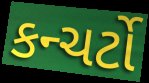
કન્ચર્ટો